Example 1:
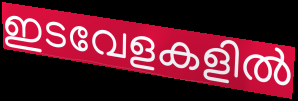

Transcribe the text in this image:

ഇടവേളകളിൽ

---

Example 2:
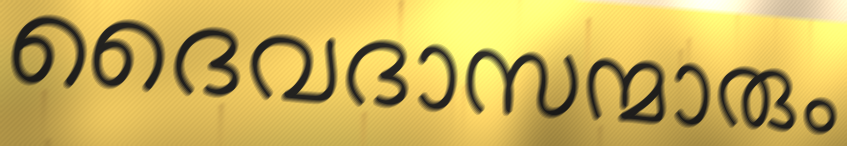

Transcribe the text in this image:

ദൈവദാസന്മാരും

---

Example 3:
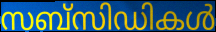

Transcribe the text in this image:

സബ്സിഡികൾ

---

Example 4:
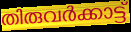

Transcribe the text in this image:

തിരുവർക്കാട്ട്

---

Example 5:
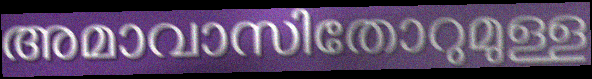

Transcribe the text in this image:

അമാവാസിതോറുമുള്ള